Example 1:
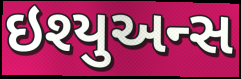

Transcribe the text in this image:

ઇશ્યુઅન્સ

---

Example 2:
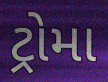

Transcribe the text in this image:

ટ્રોમા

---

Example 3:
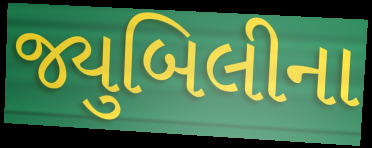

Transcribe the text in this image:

જ્યુબિલીના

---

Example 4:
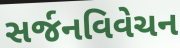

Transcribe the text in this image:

સર્જનવિવેચન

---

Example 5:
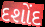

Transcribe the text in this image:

દશોંદ